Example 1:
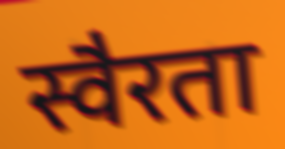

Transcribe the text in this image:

स्वैरता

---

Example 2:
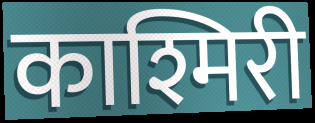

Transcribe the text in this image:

काश्मिरी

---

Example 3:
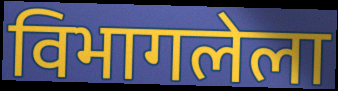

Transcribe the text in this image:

विभागलेला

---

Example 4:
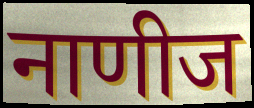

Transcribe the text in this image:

नाणीज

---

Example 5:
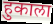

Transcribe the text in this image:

हुकाला